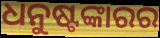
ଧନୁଷ୍ଟଙ୍କାରର